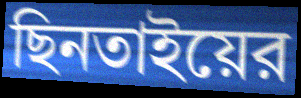
ছিনতাইয়ের